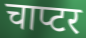
चाप्टर